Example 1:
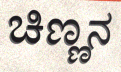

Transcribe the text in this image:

ಚಿಣ್ಣನ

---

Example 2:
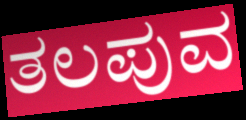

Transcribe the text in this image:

ತಲಪುವ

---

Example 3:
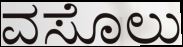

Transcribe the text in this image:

ವಸೊಲು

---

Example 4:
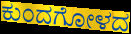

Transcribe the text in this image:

ಕುಂದಗೋಳದ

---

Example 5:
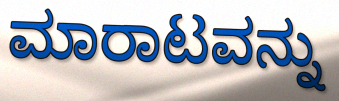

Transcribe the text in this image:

ಮಾರಾಟವನ್ನು